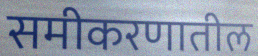
समीकरणातील